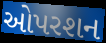
ઓપરશન